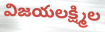
విజయలక్ష్మిల